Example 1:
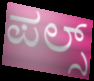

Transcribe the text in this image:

ಪಲ್ಸ್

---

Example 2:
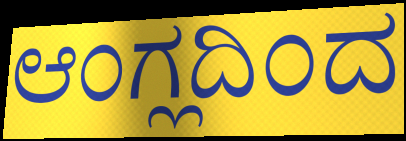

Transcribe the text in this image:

ಆಂಗ್ಲದಿಂದ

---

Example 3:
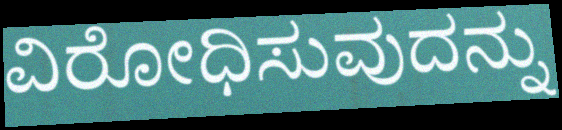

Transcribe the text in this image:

ವಿರೋಧಿಸುವುದನ್ನು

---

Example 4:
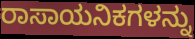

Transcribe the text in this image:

ರಾಸಾಯನಿಕಗಳನ್ನು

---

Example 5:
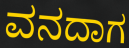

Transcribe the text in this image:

ವನದಾಗ